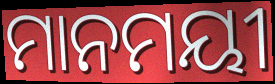
ମାନମୟୀ